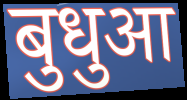
बुधुआ